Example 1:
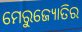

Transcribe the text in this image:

ମେରୁଜ୍ୟୋତିର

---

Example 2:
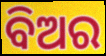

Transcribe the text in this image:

ବିଅର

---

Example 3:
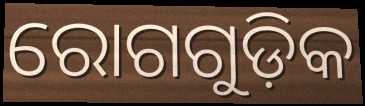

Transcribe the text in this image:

ରୋଗଗୁଡ଼ିକ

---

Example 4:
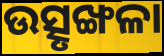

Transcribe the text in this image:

ଉତ୍ସୃଙ୍ଖଳା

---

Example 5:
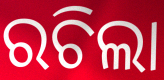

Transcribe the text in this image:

ରଚିଲା